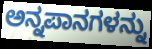
ಅನ್ನಪಾನಗಳನ್ನು